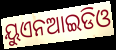
ୟୁଏନଆଇଡିଓ